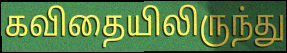
கவிதையிலிருந்து